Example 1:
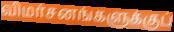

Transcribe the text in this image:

விமர்சனங்களுக்குப்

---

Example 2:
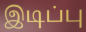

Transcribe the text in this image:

இடிப்பு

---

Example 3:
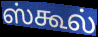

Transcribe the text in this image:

ஸ்கூல்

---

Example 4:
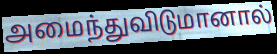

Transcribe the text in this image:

அமைந்துவிடுமானால்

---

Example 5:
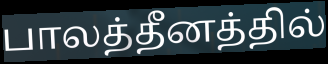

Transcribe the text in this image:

பாலத்தீனத்தில்